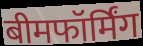
बीमफॉर्मिंग